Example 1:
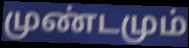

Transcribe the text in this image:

முண்டமும்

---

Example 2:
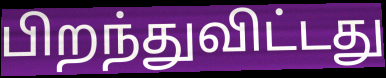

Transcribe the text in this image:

பிறந்துவிட்டது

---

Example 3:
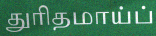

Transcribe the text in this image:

துரிதமாய்ப்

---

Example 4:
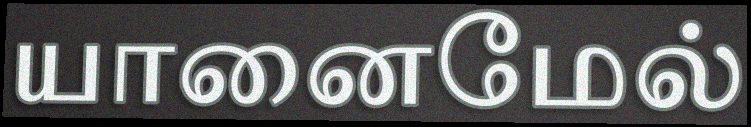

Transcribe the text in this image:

யானைமேல்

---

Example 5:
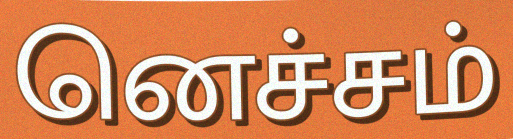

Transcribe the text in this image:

னெச்சம்